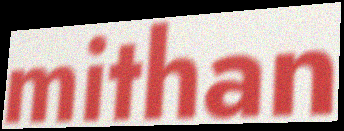
mithan